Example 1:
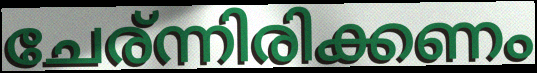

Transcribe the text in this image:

ചേര്ന്നിരിക്കണം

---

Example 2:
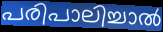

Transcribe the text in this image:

പരിപാലിച്ചാൽ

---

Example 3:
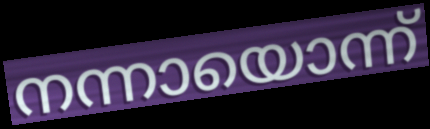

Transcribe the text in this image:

നന്നായൊന്ന്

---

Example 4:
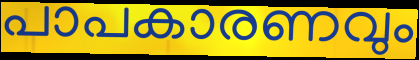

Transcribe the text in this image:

പാപകാരണവും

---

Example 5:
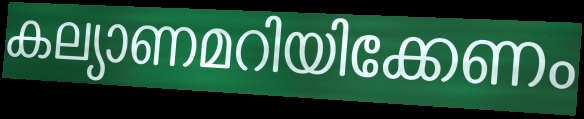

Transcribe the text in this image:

കല്യാണമറിയിക്കേണം